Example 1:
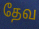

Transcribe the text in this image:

தேவ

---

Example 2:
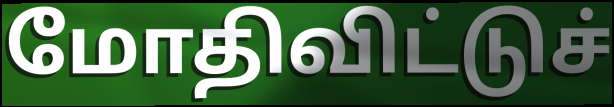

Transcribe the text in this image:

மோதிவிட்டுச்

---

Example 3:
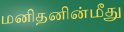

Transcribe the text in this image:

மனிதனின்மீது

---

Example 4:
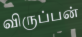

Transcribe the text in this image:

விருப்பன்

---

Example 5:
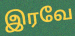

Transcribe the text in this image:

இரவே